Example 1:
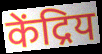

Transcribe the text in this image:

केंद्रिय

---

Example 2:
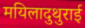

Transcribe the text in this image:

मयिलादुथुराई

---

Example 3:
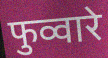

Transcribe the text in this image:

फुव्वारे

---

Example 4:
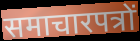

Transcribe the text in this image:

समाचारपत्रों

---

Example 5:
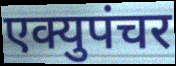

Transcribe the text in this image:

एक्युपंचर